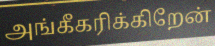
அங்கீகரிக்கிறேன்